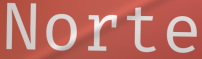
Norte